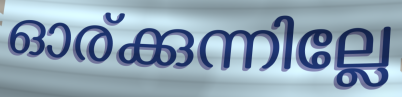
ഓര്ക്കുന്നില്ലേ